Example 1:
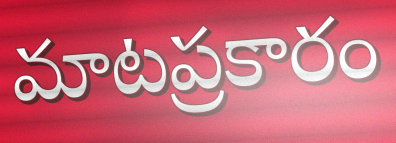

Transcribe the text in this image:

మాటప్రకారం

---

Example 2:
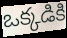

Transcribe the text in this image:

ఒక్కడికి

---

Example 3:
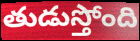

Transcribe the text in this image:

తుడుస్తోంది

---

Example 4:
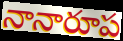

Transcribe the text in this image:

నానారూప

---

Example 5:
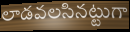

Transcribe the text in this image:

లాడవలసినట్టుగా